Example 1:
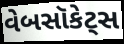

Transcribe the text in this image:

વેબસૉકેટ્સ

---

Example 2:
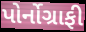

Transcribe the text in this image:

પોર્નોગ્રાફી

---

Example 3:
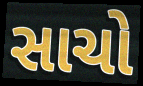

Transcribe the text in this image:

સાચો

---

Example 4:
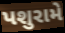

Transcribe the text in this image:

પશુરામે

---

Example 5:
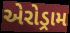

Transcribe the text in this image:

એરોડ્રામ